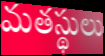
మతస్థులు